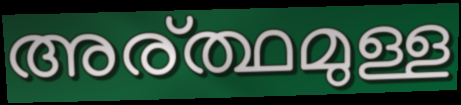
അര്ത്ഥമുള്ള